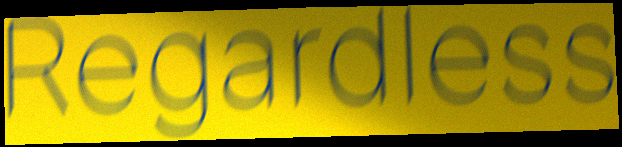
Regardless